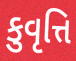
કુવૃત્તિ